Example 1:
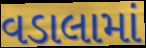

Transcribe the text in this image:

વડાલામાં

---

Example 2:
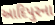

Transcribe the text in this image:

આદિપુરના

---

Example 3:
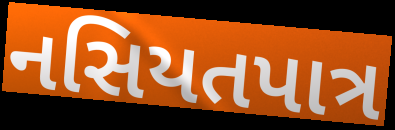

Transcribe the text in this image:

નસિયતપાત્ર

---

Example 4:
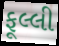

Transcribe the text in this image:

ફૂલ્લી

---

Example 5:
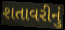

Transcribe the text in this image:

શતાવરીનું